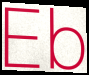
Eb